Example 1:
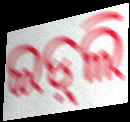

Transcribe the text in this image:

ଇଡ଼୍‌ଲି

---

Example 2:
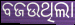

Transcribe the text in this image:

ବଜଉଥିଲା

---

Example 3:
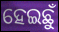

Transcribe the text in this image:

ହେଇଛୁଁ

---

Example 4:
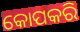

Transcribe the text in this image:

କୋପକରି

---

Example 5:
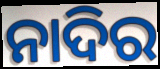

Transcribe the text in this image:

ନାଦିର